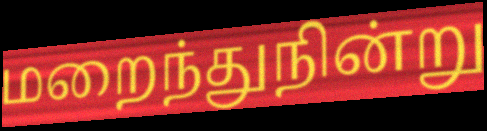
மறைந்துநின்று